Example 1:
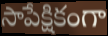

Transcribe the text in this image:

సాపేక్షికంగా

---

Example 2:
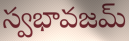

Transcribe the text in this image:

స్వభావజమ్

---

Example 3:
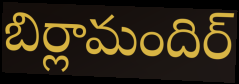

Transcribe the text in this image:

బిర్లామందిర్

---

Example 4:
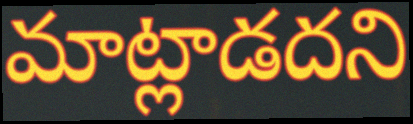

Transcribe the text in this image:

మాట్లాడదని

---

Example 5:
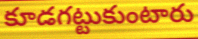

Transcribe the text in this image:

కూడగట్టుకుంటారు